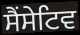
ਸੈਂਸੇਟਿਵ